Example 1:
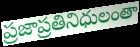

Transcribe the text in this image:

ప్రజాప్రతినిధులంతా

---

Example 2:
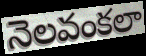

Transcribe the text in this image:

నెలవంకలా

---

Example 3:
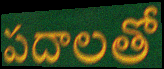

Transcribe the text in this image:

పదాలతో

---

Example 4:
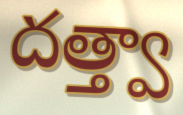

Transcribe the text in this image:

దత్త్వా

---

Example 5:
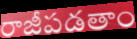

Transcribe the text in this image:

రాజీపడతాం